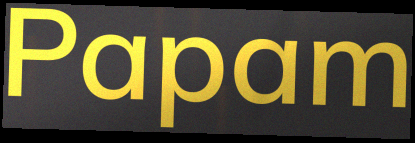
Papam